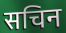
सचिन